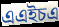
এএইচএ